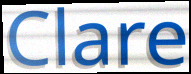
Clare